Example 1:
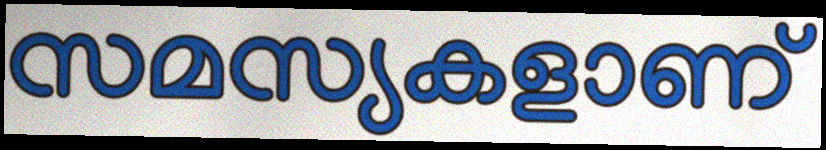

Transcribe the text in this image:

സമസ്യകളാണ്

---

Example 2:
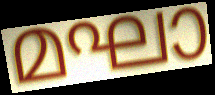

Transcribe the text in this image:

മഘാ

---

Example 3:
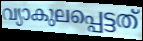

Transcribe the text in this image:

വ്യാകുലപ്പെട്ടത്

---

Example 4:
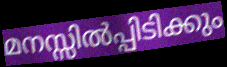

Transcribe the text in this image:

മനസ്സിൽപ്പിടിക്കും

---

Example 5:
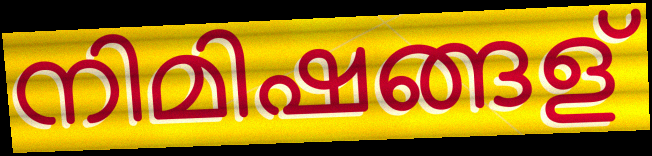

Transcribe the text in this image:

നിമിഷങ്ങള്